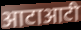
आटाआटी